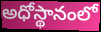
అధోస్థానంలో